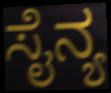
ಸೈನ್ಯ